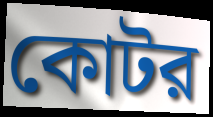
কোটর